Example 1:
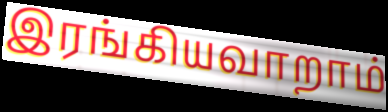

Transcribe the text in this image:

இரங்கியவாறாம்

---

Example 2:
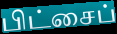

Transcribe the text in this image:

பிட்சைப்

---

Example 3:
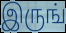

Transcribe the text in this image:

இருங்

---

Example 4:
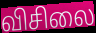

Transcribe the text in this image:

விசிலை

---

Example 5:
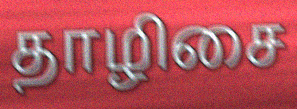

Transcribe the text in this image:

தாழிசை